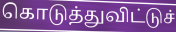
கொடுத்துவிட்டுச்